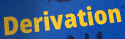
Derivation